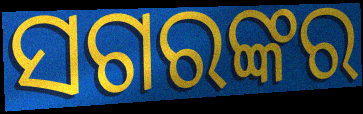
ସଗରଙ୍କର